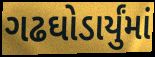
ગઢઘોડાર્યુંમાં